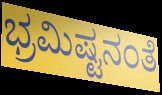
ಭ್ರಮಿಷ್ಟನಂತೆ